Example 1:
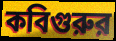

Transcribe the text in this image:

কবিগুরুর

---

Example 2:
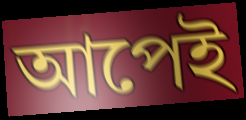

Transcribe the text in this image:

আপেই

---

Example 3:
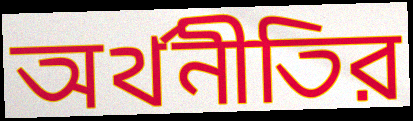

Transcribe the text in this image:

অর্থনীতির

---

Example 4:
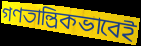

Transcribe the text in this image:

গণতান্ত্রিকভাবেই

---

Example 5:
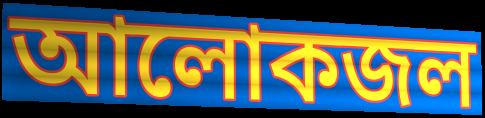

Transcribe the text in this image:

আলোকজল